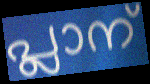
പ്ലാന്